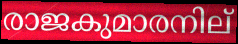
രാജകുമാരനില്